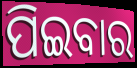
ପିଇବାର